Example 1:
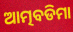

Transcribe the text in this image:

ଆତ୍ମବଡିମା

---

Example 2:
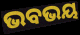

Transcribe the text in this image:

ଭବଭୟ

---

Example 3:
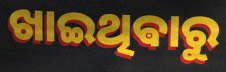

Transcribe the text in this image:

ଖାଇଥିଵାରୁ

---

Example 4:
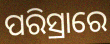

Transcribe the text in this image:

ପରିସ୍ରାରେ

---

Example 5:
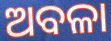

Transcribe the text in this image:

ଅବଳା